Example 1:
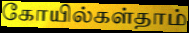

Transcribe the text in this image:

கோயில்கள்தாம்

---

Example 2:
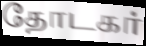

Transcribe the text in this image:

தோடகர்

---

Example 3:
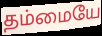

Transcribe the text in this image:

தம்மையே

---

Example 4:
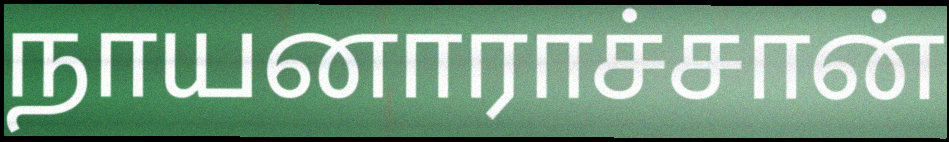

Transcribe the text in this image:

நாயனாராச்சான்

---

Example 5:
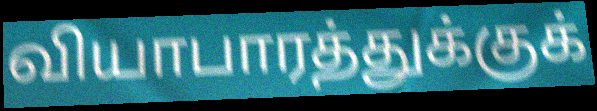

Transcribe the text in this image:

வியாபாரத்துக்குக்